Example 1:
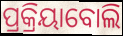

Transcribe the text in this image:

ପ୍ରକ୍ରିୟାବୋଲି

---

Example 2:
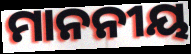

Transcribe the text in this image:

ମାନନୀୟ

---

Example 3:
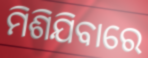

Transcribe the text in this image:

ମିଶିଯିବାରେ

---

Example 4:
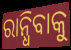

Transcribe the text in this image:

ରାନ୍ଧିବାକୁ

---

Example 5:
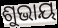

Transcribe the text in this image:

ଶୁଭାୟ